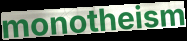
monotheism